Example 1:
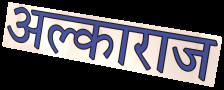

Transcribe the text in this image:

अल्काराज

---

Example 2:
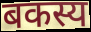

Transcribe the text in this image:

बकस्य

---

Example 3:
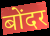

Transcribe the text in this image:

बोंदर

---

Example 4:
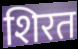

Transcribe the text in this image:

शिरत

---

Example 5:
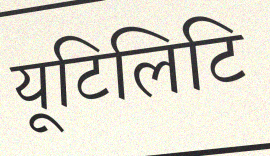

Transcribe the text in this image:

यूटिलिटि